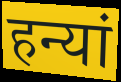
हन्यां